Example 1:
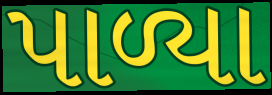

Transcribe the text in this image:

પાળ્યા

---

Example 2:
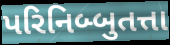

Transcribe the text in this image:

પરિનિબ્બુતત્તા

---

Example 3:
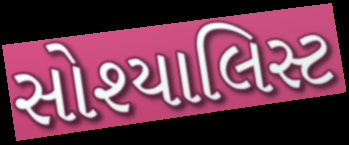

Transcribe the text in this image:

સોશ્યાલિસ્ટ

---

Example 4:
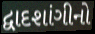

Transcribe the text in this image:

દ્વાદશાંગીનો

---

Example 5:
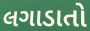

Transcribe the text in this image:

લગાડાતો